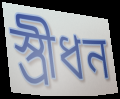
স্ত্রীধন